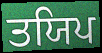
ਤਯਿਪ